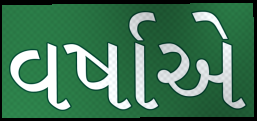
વર્ષાએ